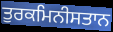
ਤੁਰਕਮਿਨੀਸਤਾਨ